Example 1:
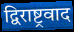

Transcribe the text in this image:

द्विराष्ट्रवाद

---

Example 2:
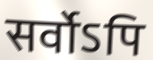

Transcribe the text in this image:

सर्वोऽपि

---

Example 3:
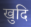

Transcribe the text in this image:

खुदि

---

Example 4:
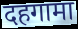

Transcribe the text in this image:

दहगामा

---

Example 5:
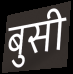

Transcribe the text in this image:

बुसी